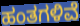
ಹಂತಗಳಿವೆ